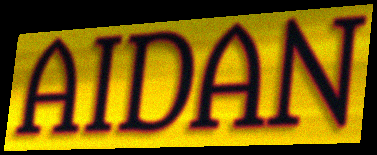
AIDAN